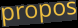
propos